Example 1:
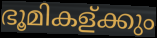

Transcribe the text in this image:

ഭൂമികള്ക്കും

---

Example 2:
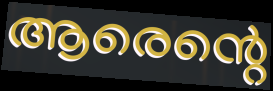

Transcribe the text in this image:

ആരെന്റെ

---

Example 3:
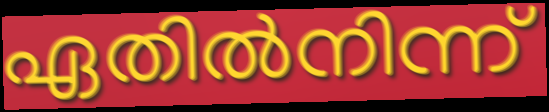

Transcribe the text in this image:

ഏതിൽനിന്ന്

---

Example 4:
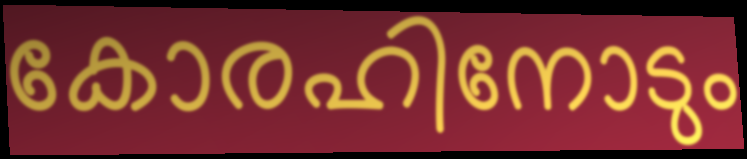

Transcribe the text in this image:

കോരഹിനോടും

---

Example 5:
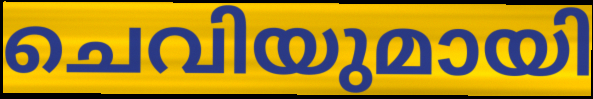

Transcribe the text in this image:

ചെവിയുമായി